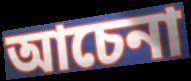
আচেনা